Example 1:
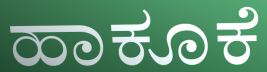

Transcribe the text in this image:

ಹಾಕೂಕೆ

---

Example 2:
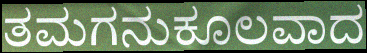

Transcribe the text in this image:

ತಮಗನುಕೂಲವಾದ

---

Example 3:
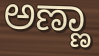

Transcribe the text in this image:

ಅಣ್ಣಾ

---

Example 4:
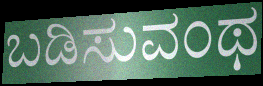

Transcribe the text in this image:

ಬಡಿಸುವಂಥ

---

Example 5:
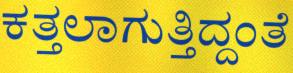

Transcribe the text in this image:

ಕತ್ತಲಾಗುತ್ತಿದ್ದಂತೆ